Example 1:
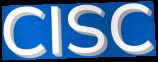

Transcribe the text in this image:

CISC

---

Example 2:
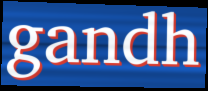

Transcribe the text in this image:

gandh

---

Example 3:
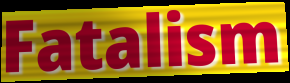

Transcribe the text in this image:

Fatalism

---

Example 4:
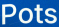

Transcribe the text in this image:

Pots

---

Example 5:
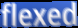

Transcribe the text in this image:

flexed